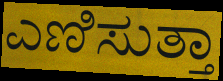
ಎಣಿಸುತ್ತಾ